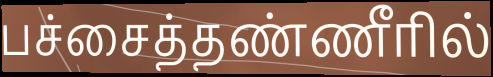
பச்சைத்தண்ணீரில்